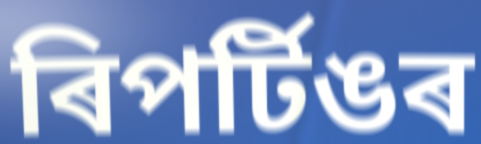
ৰিপৰ্টিঙৰ